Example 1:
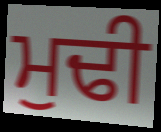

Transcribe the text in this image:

ਮੁਢੀ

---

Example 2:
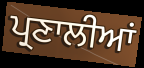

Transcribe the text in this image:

ਪ੍ਰਣਾਲੀਆਂ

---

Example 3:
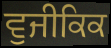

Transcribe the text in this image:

ਵੁਜੀਕਿਕ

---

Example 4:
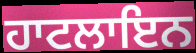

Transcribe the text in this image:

ਹਾਟਲਾਇਨ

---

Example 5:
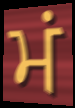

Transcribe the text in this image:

ਮਂ